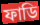
ফাডি